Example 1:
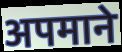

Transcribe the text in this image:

अपमाने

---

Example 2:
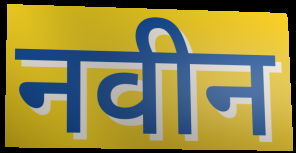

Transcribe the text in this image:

नवीन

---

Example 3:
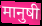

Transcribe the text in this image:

मानुषी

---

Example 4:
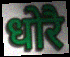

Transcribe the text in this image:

धोरै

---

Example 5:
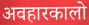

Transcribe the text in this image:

अवहारकालो